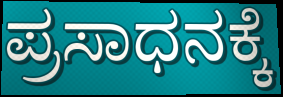
ಪ್ರಸಾಧನಕ್ಕೆ